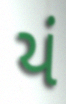
યં